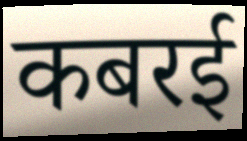
कबरई